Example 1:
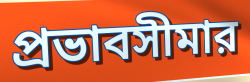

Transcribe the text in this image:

প্রভাবসীমার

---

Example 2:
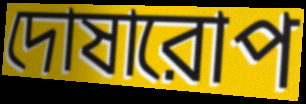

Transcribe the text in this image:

দোষারোপ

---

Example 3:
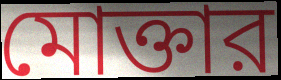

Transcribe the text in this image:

মোক্তার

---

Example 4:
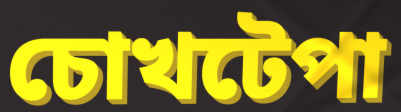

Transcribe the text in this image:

চোখটেপা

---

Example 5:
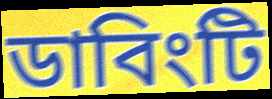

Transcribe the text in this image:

ডাবিংটি